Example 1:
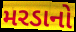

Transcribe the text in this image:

મરડાનો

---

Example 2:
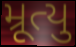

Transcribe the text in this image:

મ્રૂત્યુ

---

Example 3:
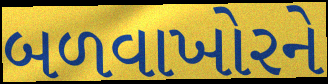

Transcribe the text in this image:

બળવાખોરને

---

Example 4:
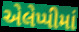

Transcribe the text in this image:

એલેપ્પીમાં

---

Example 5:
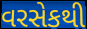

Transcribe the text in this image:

વરસેકથી